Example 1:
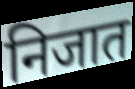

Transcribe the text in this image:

निजात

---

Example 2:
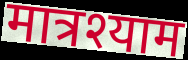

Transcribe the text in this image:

मात्रश्याम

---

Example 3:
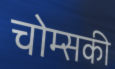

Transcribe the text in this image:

चोम्सकी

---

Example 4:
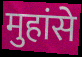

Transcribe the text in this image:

मुहांसे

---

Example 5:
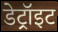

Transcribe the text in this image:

डेट्रॉइट